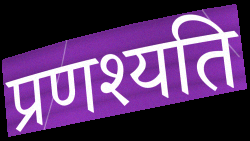
प्रणश्यति